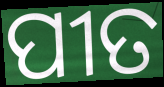
ପୀତ